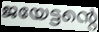
ജയേട്ടന്റെ